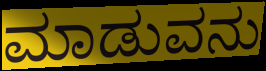
ಮಾಡುವನು